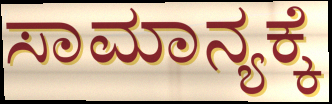
ಸಾಮಾನ್ಯಕ್ಕೆ